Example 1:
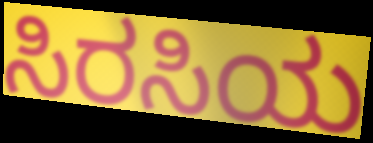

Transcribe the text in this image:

ಸಿರಸಿಯ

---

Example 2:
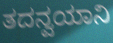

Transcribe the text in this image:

ತದನ್ವಯಾನಿ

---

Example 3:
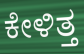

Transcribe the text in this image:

ಕೇಳಿತ್ತ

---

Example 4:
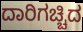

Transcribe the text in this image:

ದಾರಿಗಚ್ಚಿದ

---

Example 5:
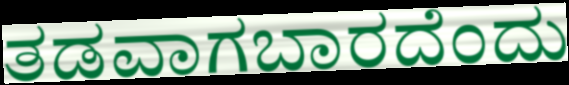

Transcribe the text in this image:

ತಡವಾಗಬಾರದೆಂದು